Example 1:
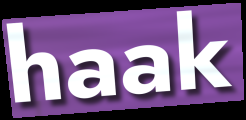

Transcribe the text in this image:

haak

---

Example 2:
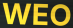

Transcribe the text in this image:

WEO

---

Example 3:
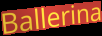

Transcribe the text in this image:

Ballerina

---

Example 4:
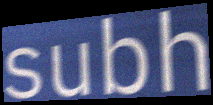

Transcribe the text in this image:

subh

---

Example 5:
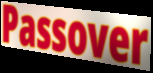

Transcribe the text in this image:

Passover